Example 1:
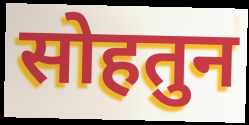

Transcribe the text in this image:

सोहतुन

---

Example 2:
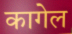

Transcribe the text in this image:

कागेल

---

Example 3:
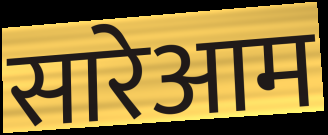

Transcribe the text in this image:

सारेआम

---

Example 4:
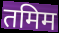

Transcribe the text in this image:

तमिम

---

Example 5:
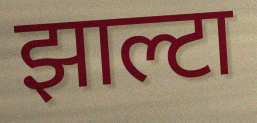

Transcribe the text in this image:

झाल्टा